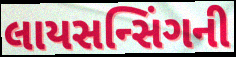
લાયસન્સિંગની